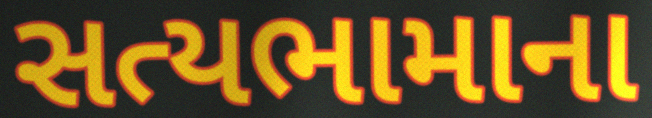
સત્યભામાના